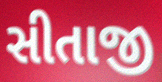
સીતાજી